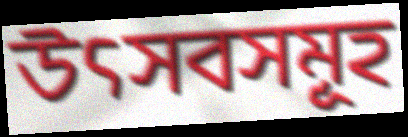
উৎসবসমূহ